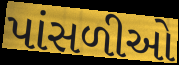
પાંસળીઓ